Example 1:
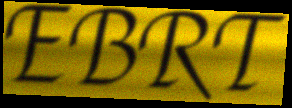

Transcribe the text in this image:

EBRT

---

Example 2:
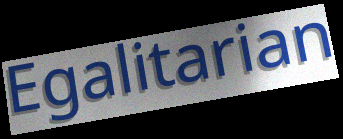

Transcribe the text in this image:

Egalitarian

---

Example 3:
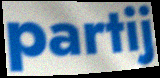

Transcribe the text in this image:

partij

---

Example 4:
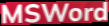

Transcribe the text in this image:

MSWord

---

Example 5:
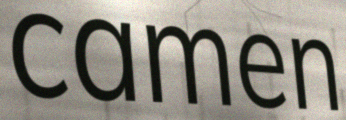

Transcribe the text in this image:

camen